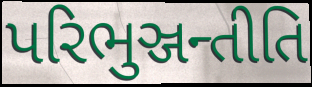
પરિભુઞ્જન્તીતિ